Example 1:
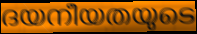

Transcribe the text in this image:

ദയനീയതയുടെ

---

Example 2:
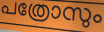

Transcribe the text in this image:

പത്രോസും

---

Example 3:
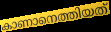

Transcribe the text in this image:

കാണാനെത്തിയത്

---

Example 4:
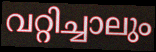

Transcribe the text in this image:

വറ്റിച്ചാലും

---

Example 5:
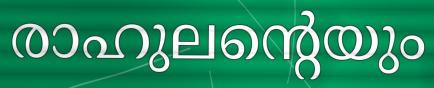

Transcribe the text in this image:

രാഹുലന്റെയും